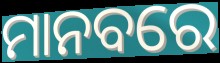
ମାନବରେ